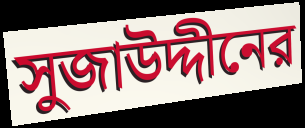
সুজাউদ্দীনের